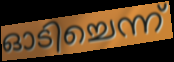
ഓടിച്ചെന്ന്